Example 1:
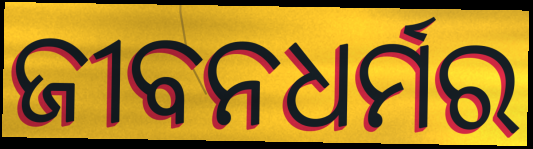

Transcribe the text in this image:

ଜୀବନଧର୍ମର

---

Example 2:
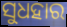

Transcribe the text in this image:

ସୁଧହାର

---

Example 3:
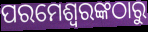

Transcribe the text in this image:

ପରମେଶ୍ଵରଙ୍କଠାରୁ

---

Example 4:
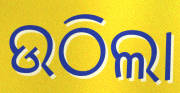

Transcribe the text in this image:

ଉଠିଲା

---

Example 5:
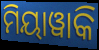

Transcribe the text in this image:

ମିୟାୱାକି